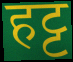
हट्ट